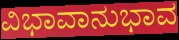
ವಿಭಾವಾನುಭಾವ